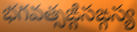
భగవత్సఙ్గిసఙ్గస్య